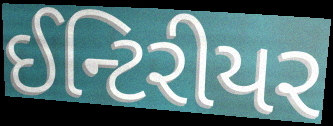
ઈન્ટિરીયર